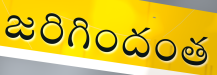
జరిగిందంత